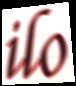
ilo